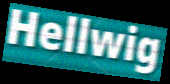
Hellwig